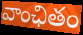
వాంఛితం